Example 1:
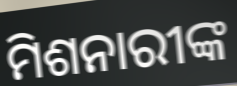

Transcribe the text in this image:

ମିଶନାରୀଙ୍କ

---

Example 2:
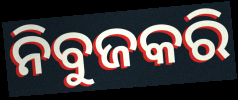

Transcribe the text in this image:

ନିବୁଜକରି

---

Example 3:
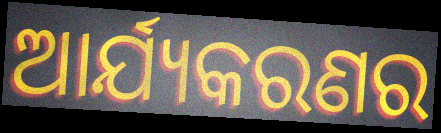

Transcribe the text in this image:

ଆର୍ଯ୍ୟକରଣର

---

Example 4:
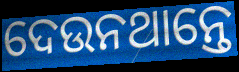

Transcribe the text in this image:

ଦେଉନଥାନ୍ତେ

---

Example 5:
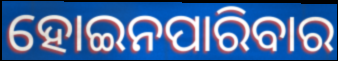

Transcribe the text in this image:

ହୋଇନପାରିବାର